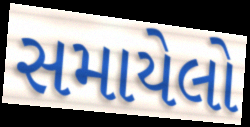
સમાયેલો